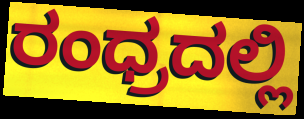
ರಂಧ್ರದಲ್ಲಿ